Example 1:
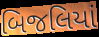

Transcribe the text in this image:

બિજલિયાં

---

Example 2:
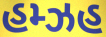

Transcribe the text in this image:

હમ્ઝહ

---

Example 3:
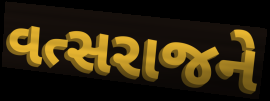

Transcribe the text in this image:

વત્સરાજને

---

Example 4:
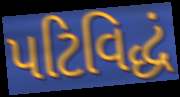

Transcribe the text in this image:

પટિવિદ્ધં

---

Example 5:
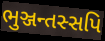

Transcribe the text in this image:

ભુઞ્જન્તસ્સપિ